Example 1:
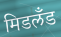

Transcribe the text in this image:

मिडलँड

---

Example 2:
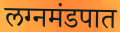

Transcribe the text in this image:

लग्नमंडपात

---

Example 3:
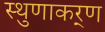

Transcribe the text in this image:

स्थुणाकर्ण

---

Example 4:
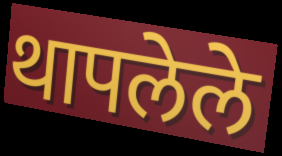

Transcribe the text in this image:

थापलेले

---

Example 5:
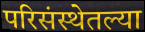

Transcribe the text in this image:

परिसंस्थेतल्या